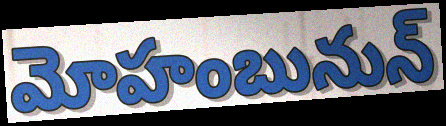
మోహంబునున్